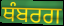
ਥੰਬਰਗ